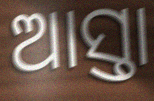
ଆସ୍ତା